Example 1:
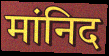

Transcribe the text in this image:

मांनिद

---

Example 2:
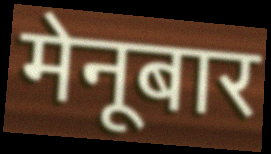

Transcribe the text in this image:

मेनूबार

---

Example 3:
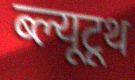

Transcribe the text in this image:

ब्ल्यूटूथ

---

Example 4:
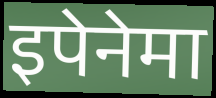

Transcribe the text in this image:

इपेनेमा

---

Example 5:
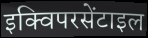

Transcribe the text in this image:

इक्विपरसेंटाइल